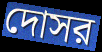
দোসর